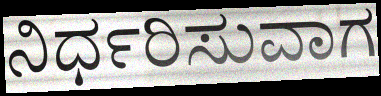
ನಿರ್ಧರಿಸುವಾಗ